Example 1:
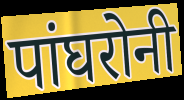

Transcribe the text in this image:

पांघरोनी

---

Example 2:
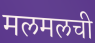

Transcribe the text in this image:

मलमलची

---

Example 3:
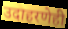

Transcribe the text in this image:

उदाहरणेही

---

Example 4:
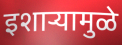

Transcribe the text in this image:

इशाऱ्यामुळे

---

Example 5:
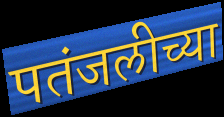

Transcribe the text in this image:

पतंजलीच्या